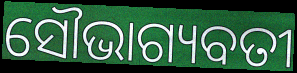
ସୌଭାଗ୍ୟବତୀ